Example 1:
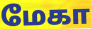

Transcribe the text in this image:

மேகா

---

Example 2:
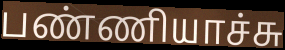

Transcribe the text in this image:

பண்ணியாச்சு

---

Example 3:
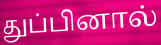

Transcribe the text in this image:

துப்பினால்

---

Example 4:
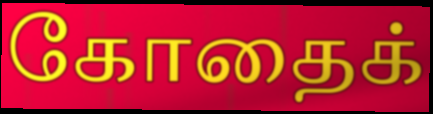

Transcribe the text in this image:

கோதைக்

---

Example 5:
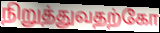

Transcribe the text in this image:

நிறுத்துவதற்கோ